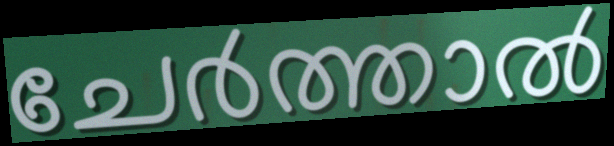
ചേർത്താൽ